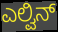
ಎಲ್ವಿನ್